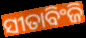
ସୀତାବିଂଜି